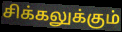
சிக்கலுக்கும்